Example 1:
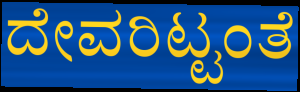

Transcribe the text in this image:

ದೇವರಿಟ್ಟಂತೆ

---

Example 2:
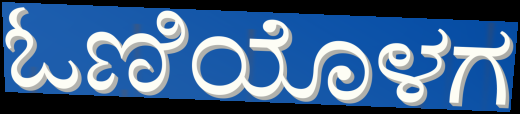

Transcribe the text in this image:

ಓಣಿಯೊಳಗ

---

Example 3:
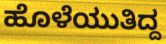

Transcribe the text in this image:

ಹೊಳೆಯುತಿದ್ದ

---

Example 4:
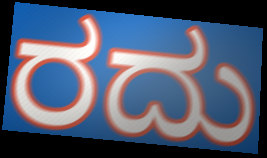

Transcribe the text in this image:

ರದು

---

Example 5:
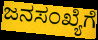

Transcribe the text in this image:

ಜನಸಂಖ್ಯೆಗೆ